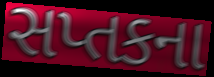
સપ્તકના